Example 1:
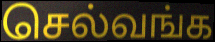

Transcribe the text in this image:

செல்வங்க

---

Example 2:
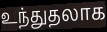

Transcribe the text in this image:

உந்துதலாக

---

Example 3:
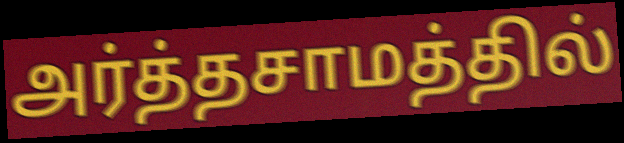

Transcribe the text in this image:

அர்த்தசாமத்தில்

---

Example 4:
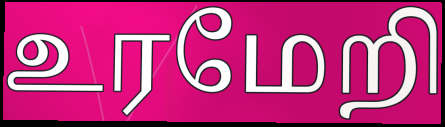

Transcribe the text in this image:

உரமேறி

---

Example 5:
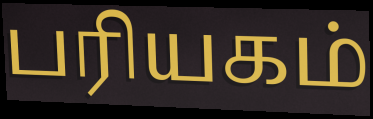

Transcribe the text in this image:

பரியகம்